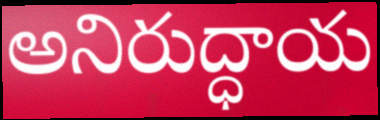
అనిరుద్ధాయ